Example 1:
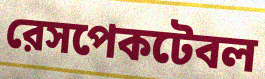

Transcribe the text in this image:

রেসপেকটেবল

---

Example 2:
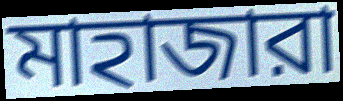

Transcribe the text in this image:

মাহাজারা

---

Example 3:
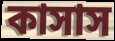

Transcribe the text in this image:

কাসাস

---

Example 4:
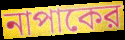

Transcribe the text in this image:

নাপাকের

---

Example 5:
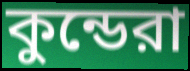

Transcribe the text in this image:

কুন্ডেরা